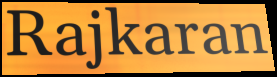
Rajkaran